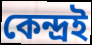
কেন্দ্ৰই